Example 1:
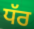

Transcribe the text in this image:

ਧੱਰ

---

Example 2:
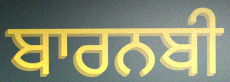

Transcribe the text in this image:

ਬਾਰਨਬੀ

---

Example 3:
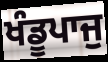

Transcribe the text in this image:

ਖੰਡੂਪਾਜੁ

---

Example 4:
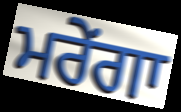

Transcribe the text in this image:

ਮਰੇਂਗਾ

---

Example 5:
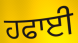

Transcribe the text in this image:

ਹਫਾਈ